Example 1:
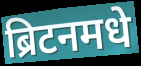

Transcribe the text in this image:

ब्रिटनमधे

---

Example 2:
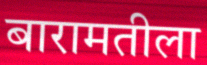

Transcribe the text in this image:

बारामतीला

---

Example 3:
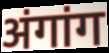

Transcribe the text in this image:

अंगांग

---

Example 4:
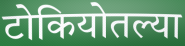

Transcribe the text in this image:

टोकियोतल्या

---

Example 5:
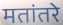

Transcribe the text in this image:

मतांतरे